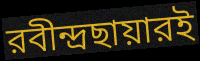
রবীন্দ্রছায়ারই